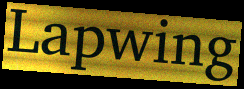
Lapwing